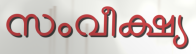
സംവീക്ഷ്യ